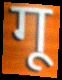
गू